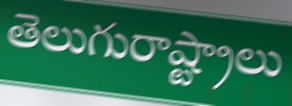
తెలుగురాష్ట్రాలు